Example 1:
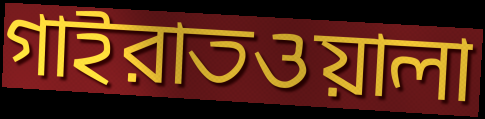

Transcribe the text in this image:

গাইরাতওয়ালা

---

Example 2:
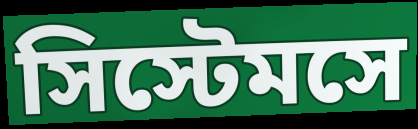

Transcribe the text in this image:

সিস্টেমসে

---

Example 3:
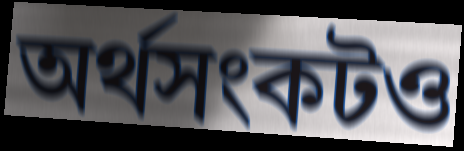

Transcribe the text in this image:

অর্থসংকটও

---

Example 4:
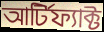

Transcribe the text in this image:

আর্টিফ্যাক্ট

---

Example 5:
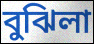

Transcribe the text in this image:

বুঝিলা